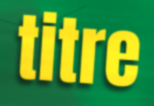
titre